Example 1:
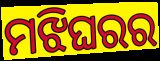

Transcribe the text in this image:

ମଝିଘରର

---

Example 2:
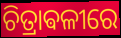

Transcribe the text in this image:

ଚିତ୍ରାଵଳୀରେ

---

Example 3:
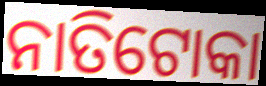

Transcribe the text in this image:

ନାତିଟୋକା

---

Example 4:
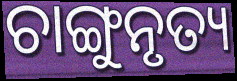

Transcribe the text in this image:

ଚାଙ୍ଗୁନୃତ୍ୟ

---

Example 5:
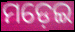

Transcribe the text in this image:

ମଡ଼େଇ